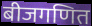
बीजगणित